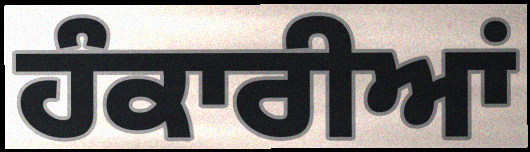
ਹੰਕਾਰੀਆਂ